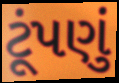
ટૂંપણું